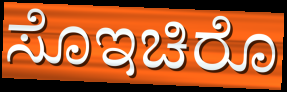
ಸೊಇಚಿರೊ